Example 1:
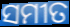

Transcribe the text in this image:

ସମୀତ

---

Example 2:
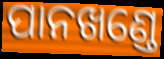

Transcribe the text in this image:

ପାନଖଣ୍ଡେ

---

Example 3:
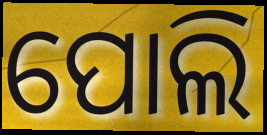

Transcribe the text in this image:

ପୋଲି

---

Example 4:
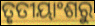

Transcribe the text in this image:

ତୃତୀୟାଂଶରୁ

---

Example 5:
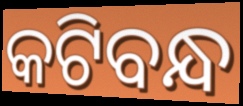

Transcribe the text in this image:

କଟିବନ୍ଧ